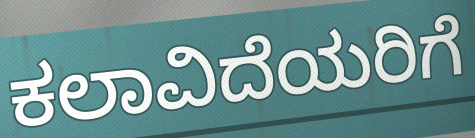
ಕಲಾವಿದೆಯರಿಗೆ